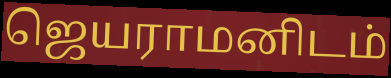
ஜெயராமனிடம்